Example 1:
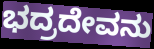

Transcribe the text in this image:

ಭದ್ರದೇವನು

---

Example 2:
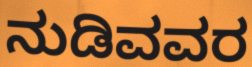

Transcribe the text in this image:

ನುಡಿವವರ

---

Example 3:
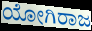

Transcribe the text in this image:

ಯೋಗಿರಾಜ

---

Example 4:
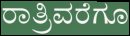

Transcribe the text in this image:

ರಾತ್ರಿವರೆಗೂ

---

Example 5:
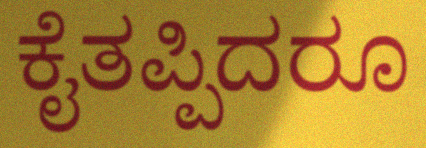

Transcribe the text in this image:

ಕೈತಪ್ಪಿದರೂ